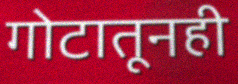
गोटातूनही